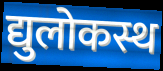
द्युलोकस्थ